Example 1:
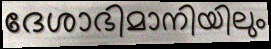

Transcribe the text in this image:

ദേശാഭിമാനിയിലും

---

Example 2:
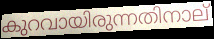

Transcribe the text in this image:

കുറവായിരുന്നതിനാല്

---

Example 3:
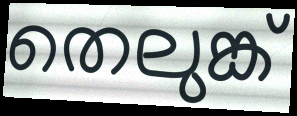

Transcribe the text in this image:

തെലുങ്ക്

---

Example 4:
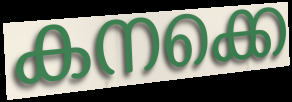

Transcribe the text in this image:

കനക്കെ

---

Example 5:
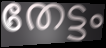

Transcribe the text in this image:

തേട്ടം